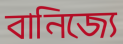
বানিজ্যে